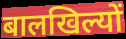
बालखिल्यों